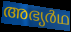
അഭ്യർഥ